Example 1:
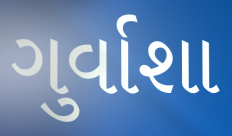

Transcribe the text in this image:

ગુર્વાશા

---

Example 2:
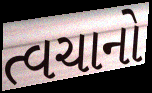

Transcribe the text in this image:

ત્વચાનો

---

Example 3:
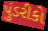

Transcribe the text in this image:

પુંડરીકો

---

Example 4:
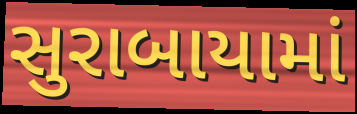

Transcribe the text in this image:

સુરાબાયામાં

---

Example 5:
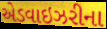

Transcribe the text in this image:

એડવાઇઝરીના